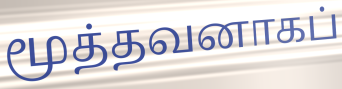
மூத்தவனாகப்